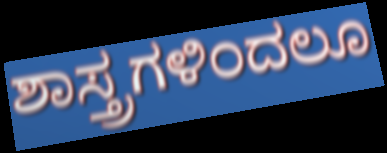
ಶಾಸ್ತ್ರಗಳಿಂದಲೂ